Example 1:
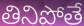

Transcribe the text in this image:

తినిపోతే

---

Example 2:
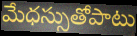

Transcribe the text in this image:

మేధస్సుతోపాటు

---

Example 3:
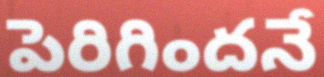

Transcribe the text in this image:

పెరిగిందనే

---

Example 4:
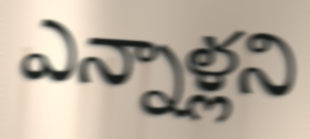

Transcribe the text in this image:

ఎన్నాళ్లని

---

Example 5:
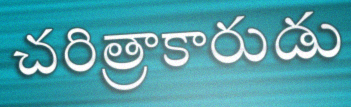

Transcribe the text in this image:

చరిత్రాకారుడు